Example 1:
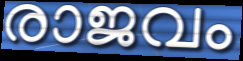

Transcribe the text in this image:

രാജവം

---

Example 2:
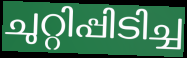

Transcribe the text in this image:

ചുറ്റിപ്പിടിച്ച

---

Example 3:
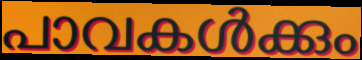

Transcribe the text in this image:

പാവകൾക്കും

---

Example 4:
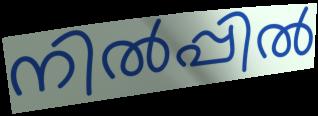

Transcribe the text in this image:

നിൽപ്പിൽ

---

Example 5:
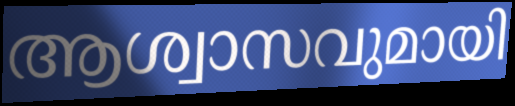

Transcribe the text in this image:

ആശ്വാസവുമായി